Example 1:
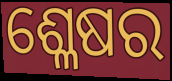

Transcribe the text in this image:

ଶ୍ଳେଷର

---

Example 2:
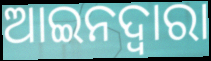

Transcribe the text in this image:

ଆଇନଦ୍ଵାରା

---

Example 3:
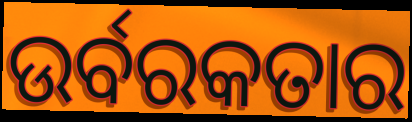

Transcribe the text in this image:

ଉର୍ବରକତାର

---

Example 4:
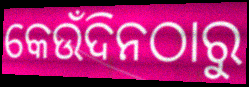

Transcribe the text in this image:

କେଉଁଦିନଠାରୁ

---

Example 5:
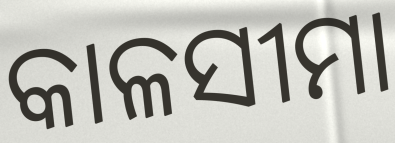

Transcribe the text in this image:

କାଳସୀମା